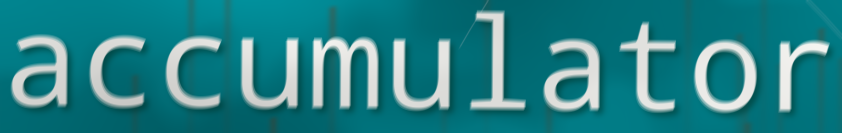
accumulator